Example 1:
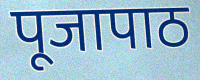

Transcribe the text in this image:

पूजापाठ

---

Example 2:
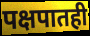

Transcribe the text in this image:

पक्षपातही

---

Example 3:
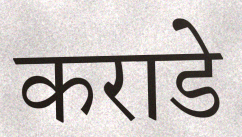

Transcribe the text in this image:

कराडे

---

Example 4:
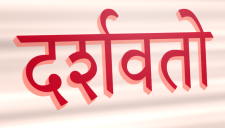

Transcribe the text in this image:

दर्शवतो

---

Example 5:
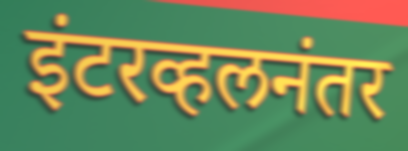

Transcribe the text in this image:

इंटरव्हलनंतर